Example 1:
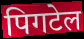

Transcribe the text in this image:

पिगटेल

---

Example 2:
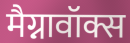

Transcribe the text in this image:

मैग्नावॉक्स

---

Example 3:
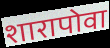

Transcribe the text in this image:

शारापोवा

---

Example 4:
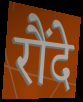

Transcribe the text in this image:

रौंदे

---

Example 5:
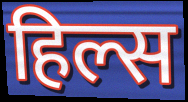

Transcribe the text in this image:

हिल्स